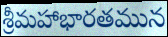
శ్రీమహాభారతమున